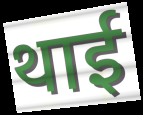
थाई